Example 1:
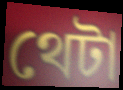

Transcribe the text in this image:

থেটা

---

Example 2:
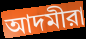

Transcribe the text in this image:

আদমীরা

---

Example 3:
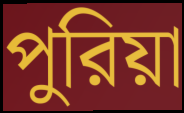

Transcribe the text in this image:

পুরিয়া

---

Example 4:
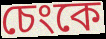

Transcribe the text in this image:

চেংকে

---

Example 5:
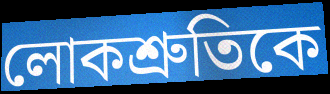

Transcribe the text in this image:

লোকশ্রুতিকে